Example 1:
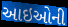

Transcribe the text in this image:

આઇઓની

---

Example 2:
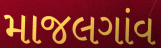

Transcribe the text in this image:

માજલગાંવ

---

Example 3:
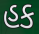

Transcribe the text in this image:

હક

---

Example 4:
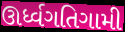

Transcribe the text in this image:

ઊર્ધ્વગતિગામી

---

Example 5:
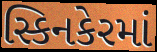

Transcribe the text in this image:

સ્કિનકેરમાં